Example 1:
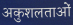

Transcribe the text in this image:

अकुशलताओं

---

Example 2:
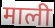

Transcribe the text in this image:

माली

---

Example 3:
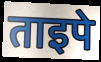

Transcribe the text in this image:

ताइपे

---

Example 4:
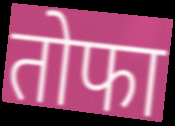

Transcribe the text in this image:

तोफा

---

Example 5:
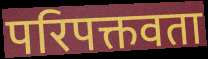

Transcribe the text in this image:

परिपक्तवता